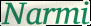
Narmi